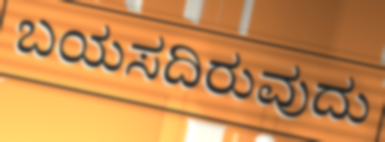
ಬಯಸದಿರುವುದು